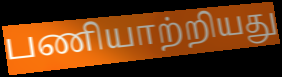
பணியாற்றியது